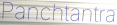
Panchtantra